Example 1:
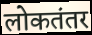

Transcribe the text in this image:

लोकतंतर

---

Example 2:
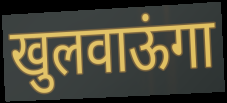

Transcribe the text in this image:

खुलवाऊंगा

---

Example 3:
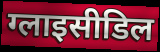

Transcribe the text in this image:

ग्लाइसीडिल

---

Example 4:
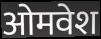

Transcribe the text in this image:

ओमवेश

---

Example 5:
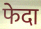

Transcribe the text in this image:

फेदा